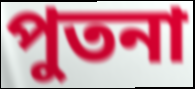
পুতনা